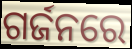
ଗର୍ଜନରେ